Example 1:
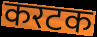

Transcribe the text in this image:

करटक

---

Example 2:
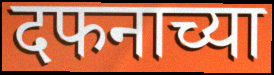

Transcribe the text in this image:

दफनाच्या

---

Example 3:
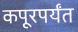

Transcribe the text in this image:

कपूरपर्यंत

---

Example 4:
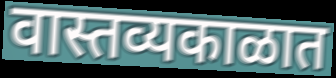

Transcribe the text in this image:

वास्तव्यकाळात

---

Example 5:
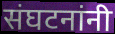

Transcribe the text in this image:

संघटनांनी